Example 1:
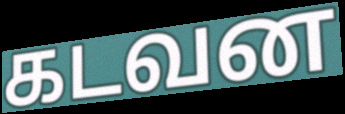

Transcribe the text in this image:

கடவன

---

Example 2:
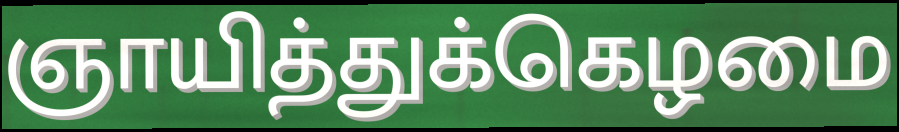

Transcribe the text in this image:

ஞாயித்துக்கெழமை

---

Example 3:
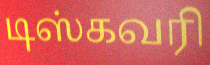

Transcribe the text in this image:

டிஸ்கவரி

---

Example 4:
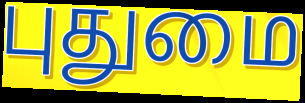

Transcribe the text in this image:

புதுமை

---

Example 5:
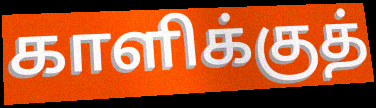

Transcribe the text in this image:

காளிக்குத்